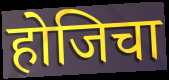
होजिचा